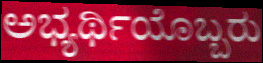
ಅಭ್ಯರ್ಥಿಯೊಬ್ಬರು